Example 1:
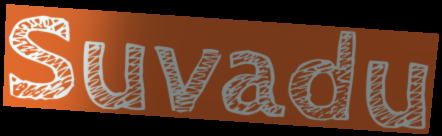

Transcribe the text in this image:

Suvadu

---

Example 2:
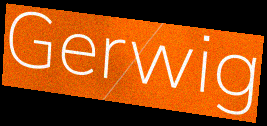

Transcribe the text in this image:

Gerwig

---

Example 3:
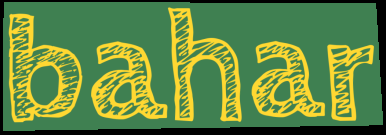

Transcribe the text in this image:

bahar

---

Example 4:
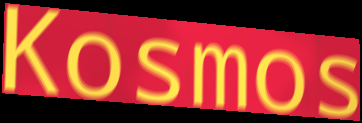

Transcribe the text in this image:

Kosmos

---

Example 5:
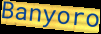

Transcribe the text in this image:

Banyoro